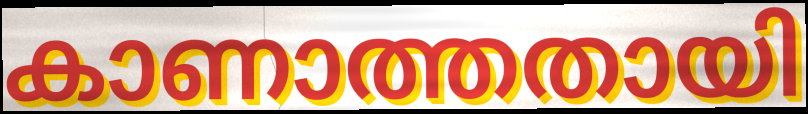
കാണാത്തതായി